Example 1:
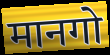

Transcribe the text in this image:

मानगो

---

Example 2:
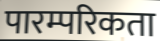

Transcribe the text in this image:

पारम्परिकता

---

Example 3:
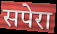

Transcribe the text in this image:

सपेरा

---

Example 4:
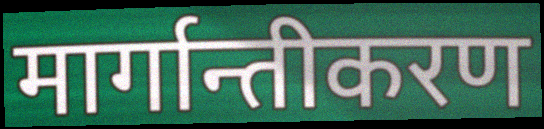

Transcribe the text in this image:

मार्गान्तीकरण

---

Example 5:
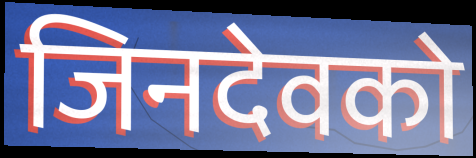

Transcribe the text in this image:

जिनदेवको